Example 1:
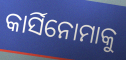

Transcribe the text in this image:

କାର୍ସିନୋମାକୁ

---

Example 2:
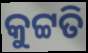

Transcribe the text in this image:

କୁଟ୍ଟତି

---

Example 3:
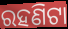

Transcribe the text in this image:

ରହଣିଟା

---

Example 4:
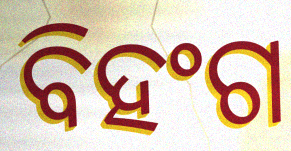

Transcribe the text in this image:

ବିହଂଗ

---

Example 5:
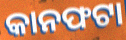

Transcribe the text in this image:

କାନଫଟା